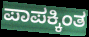
ಪಾಪಕ್ಕಿಂತ